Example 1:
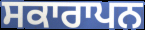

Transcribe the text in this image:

ਸਕਾਰਾਪਨ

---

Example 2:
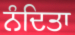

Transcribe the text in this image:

ਨੰਦਿਤਾ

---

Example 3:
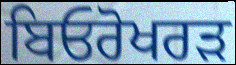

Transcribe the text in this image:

ਬਿਓਰੋਖਰੜ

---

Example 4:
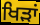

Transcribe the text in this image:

ਖਿੜਾਂ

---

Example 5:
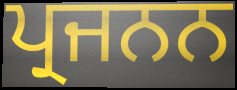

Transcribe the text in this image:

ਪ੍ਰਜਨਨ